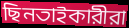
ছিনতাইকারীরা